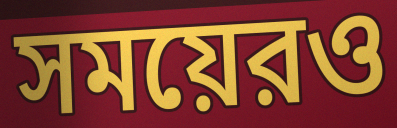
সময়েরও